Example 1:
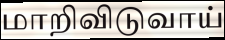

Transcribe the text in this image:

மாறிவிடுவாய்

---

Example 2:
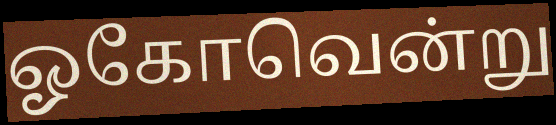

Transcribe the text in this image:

ஓகோவென்று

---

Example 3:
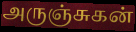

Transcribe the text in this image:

அருஞ்சுகன்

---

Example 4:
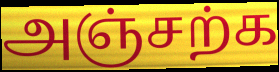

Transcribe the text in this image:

அஞ்சற்க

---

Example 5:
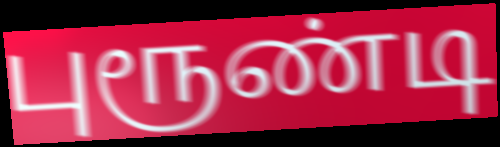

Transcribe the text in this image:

புரூண்டி